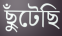
ছুঁটেছি